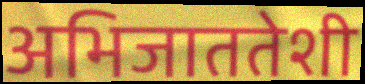
अभिजाततेशी